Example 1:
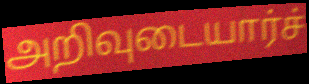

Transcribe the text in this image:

அறிவுடையார்ச்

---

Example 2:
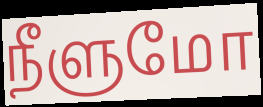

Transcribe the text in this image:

நீளுமோ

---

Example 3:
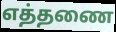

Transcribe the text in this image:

எத்தணை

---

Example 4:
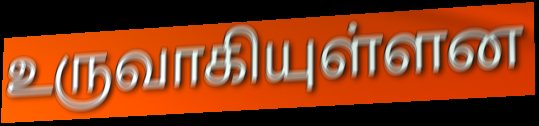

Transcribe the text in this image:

உருவாகியுள்ளன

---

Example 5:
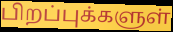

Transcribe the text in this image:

பிறப்புக்களுள்